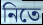
নিতে